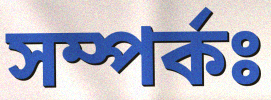
সম্পৰ্কঃ